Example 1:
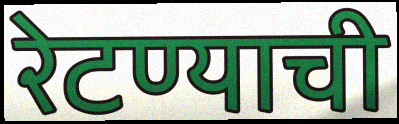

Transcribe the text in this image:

रेटण्याची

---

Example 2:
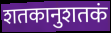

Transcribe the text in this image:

शतकानुशतकं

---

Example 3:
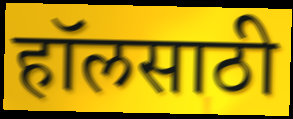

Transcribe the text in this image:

हॉलसाठी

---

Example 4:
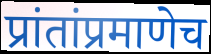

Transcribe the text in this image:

प्रांतांप्रमाणेच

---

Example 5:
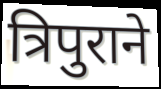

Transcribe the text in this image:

त्रिपुराने